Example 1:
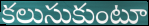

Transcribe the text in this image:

కలుసుకుంటూ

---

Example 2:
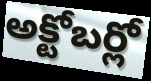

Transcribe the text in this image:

అక్టోబర్లో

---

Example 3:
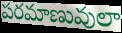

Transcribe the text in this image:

పరమాణువులా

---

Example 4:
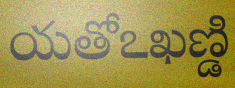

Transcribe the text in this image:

యతోఽఖణ్డి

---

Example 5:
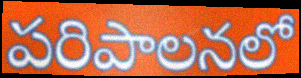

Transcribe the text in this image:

పరిపాలనలో